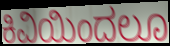
ಕಿವಿಯಿಂದಲೂ